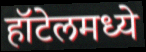
हॉटेलमध्ये